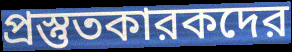
প্রস্তুতকারকদের